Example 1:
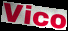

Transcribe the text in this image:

Vico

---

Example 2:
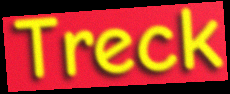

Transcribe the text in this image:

Treck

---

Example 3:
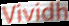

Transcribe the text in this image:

Vividh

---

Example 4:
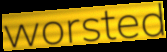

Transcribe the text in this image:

worsted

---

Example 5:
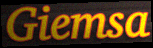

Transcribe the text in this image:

Giemsa